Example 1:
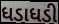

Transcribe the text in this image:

ધડાધડી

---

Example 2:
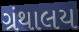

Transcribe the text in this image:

ગ્રંથાલય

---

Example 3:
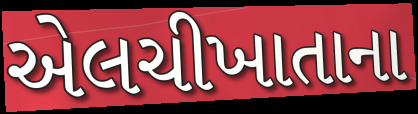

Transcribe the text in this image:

એલચીખાતાના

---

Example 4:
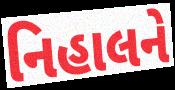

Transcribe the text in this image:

નિહાલને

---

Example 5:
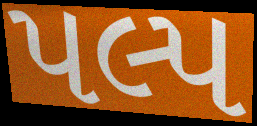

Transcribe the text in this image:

પલ્પ